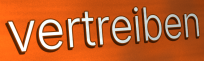
vertreiben